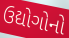
ઉદ્યોગોનો